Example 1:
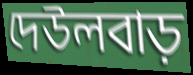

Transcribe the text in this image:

দেউলবাড়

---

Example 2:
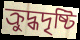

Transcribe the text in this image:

ক্রুদ্ধদৃষ্টি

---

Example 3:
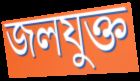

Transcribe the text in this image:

জলযুক্ত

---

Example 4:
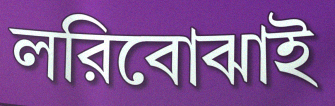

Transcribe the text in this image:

লরিবোঝাই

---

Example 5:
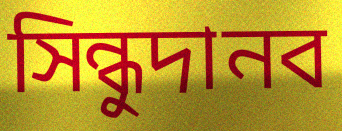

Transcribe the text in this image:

সিন্ধুদানব